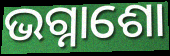
ଭଗ୍ନାଶୋ